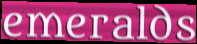
emeralds